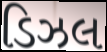
ડિઝલ